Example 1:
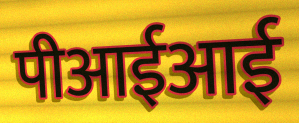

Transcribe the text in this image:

पीआईआई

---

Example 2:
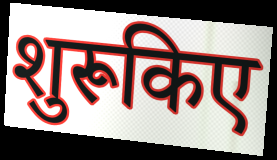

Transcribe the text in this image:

शुरूकिए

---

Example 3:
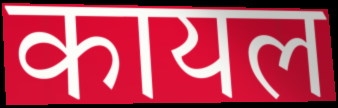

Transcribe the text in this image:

कायल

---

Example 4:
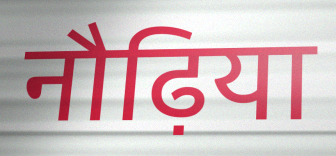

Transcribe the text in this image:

नौढ़िया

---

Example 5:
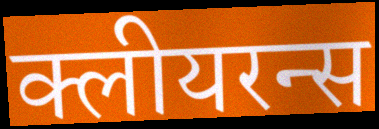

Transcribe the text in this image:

क्लीयरन्स